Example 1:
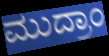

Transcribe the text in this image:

ಮುದ್ರಾಂ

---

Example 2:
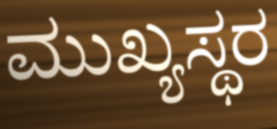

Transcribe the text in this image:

ಮುಖ್ಯಸ್ಥರ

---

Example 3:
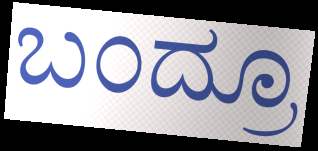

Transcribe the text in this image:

ಬಂದ್ರೂ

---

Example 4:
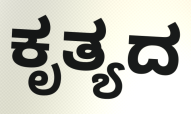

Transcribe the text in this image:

ಕೃತ್ಯದ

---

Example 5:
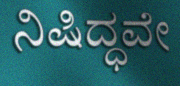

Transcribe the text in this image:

ನಿಷಿದ್ಧವೇ